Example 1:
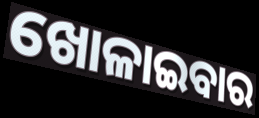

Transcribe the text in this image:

ଖୋଳାଇବାର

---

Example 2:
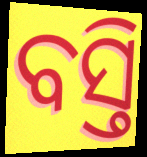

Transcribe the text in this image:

ବସ୍ତି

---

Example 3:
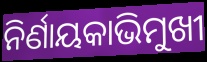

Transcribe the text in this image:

ନିର୍ଣାୟକାଭିମୁଖୀ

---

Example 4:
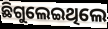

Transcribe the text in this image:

ଛିଗୁଲେଇଥିଲେ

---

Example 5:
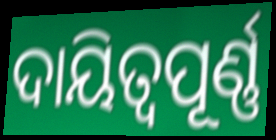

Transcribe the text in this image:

ଦାୟିତ୍ୱପୂର୍ଣ୍ଣ